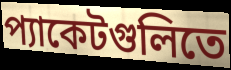
প্যাকেটগুলিতে